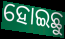
ହୋଇଛୁ